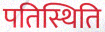
पतिस्थिति